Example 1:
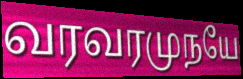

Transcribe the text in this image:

வரவரமுநயே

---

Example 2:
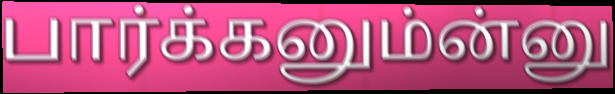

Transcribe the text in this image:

பார்க்கனும்ன்னு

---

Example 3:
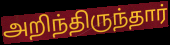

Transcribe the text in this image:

அறிந்திருந்தார்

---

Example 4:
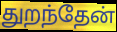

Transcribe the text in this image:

துறந்தேன்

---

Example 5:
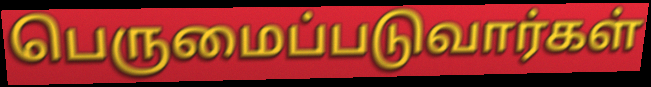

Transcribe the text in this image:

பெருமைப்படுவார்கள்